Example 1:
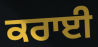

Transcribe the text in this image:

ਕਰਾਈ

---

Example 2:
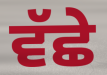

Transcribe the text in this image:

ਵੱਛੇ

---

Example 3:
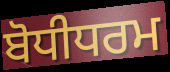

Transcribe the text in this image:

ਬੋਧੀਧਰਮ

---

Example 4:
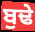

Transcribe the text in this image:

ਬੁਢੇ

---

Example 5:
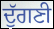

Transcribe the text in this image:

ਦੁੱਗਣੀ